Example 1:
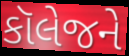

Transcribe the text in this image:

કૉલેજને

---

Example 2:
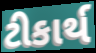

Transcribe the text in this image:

ટીકાર્થ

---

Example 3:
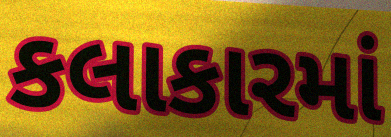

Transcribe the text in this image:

કલાકારમાં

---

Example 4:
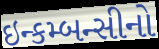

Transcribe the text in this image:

ઇન્કમ્બન્સીનો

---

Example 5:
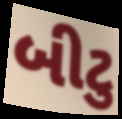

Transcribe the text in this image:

બીટુ